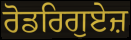
ਰੋਡਰਿਗੁਏਜ਼